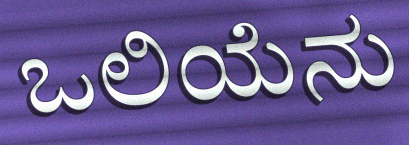
ಒಲಿಯೆನು